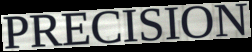
PRECISION